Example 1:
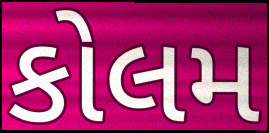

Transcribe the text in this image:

કોલમ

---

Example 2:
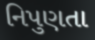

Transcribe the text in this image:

નિપુણતા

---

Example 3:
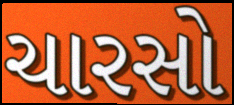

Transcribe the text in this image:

ચારસો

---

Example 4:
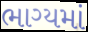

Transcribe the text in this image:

ભાગ્યમાં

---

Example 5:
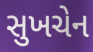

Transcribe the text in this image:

સુખચેન